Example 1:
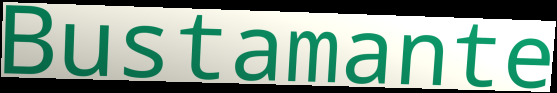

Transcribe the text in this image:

Bustamante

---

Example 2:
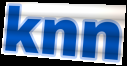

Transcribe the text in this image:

knn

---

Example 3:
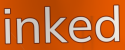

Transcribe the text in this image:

inked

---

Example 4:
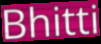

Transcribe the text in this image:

Bhitti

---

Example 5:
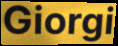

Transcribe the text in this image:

Giorgi